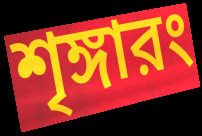
শৃঙ্গারং